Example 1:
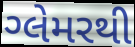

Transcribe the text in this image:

ગ્લેમરથી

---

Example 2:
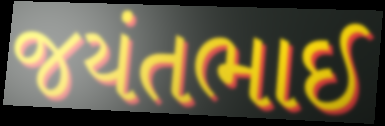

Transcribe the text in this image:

જયંતભાઈ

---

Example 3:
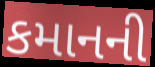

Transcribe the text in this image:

કમાનની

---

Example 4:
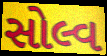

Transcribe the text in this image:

સોલ્વ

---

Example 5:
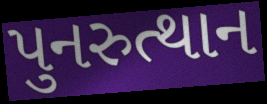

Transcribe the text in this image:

પુનરુત્થાન